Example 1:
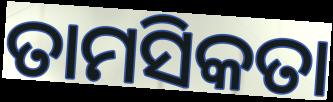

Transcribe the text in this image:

ତାମସିକତା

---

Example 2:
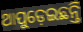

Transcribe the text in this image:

ଥାପୁଡ଼େଇଛନ୍ତି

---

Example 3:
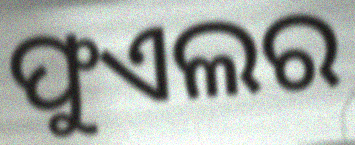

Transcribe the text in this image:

ଫୁଏଲର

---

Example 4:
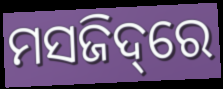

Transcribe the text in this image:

ମସଜିଦ୍‌ରେ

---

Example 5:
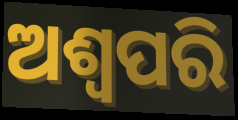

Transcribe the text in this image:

ଅଶ୍ୱପରି